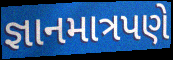
જ્ઞાનમાત્રપણે